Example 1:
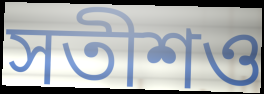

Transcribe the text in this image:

সতীশও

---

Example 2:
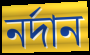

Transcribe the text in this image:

নর্দান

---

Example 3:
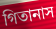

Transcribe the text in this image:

গিতানাস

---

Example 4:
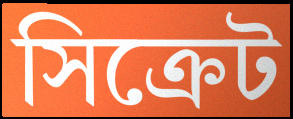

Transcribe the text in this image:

সিক্রেট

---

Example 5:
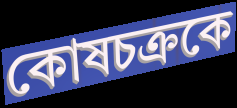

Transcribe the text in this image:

কোষচক্রকে